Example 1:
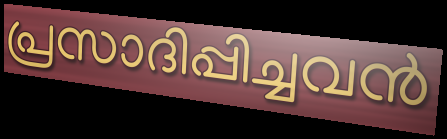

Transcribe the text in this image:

പ്രസാദിപ്പിച്ചവൻ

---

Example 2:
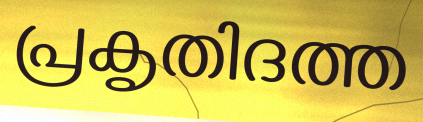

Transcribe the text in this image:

പ്രകൃതിദത്ത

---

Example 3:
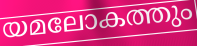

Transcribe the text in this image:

യമലോകത്തും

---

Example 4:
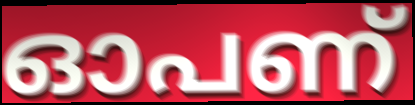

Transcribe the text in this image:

ഓപണ്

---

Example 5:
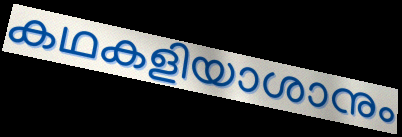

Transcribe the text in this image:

കഥകളിയാശാനും